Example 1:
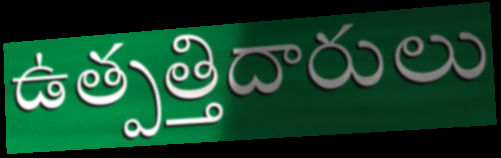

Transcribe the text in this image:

ఉత్పత్తిదారులు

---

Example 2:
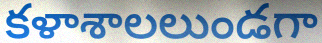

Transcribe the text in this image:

కళాశాలలుండగా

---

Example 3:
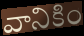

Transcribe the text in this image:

వానికిం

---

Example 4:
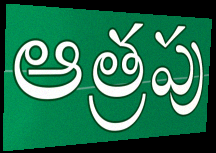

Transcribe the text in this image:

ఆత్రపు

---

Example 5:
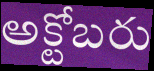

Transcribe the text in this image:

అక్టోబరు